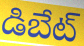
డిబేట్